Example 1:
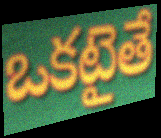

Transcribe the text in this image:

ఒకటైతే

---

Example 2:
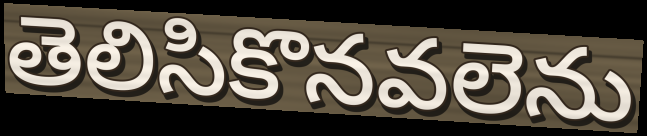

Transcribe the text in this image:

తెలిసికొనవలెను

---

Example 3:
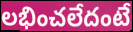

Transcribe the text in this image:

లభించలేదంటే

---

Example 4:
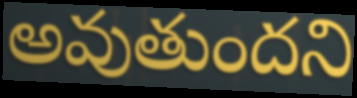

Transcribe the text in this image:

అవుతుందని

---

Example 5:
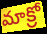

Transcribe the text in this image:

మాక్రో